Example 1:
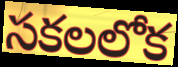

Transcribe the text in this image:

సకలలోక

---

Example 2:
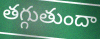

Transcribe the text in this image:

తగ్గుతుందా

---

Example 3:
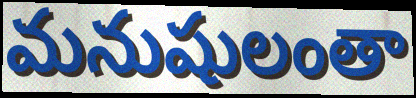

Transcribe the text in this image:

మనుషులంతా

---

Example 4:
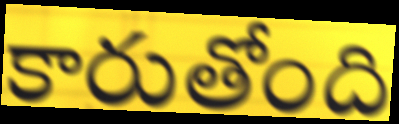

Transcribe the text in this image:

కారుతోంది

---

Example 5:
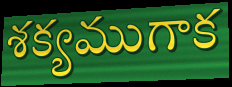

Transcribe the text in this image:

శక్యముగాక